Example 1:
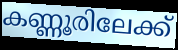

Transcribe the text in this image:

കണ്ണൂരിലേക്ക്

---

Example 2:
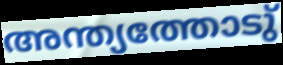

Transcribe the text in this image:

അന്ത്യത്തോടു്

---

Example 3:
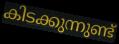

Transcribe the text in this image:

കിടക്കുന്നുണ്ട്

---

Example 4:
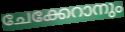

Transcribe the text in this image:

ചേക്കേറാനും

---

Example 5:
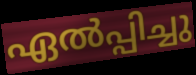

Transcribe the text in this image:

ഏൽപ്പിച്ചു